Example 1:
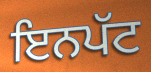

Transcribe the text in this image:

ਇਨਪੱਟ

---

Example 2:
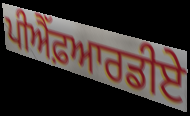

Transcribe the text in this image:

ਪੀਐੱਫ਼ਆਰਡੀਏ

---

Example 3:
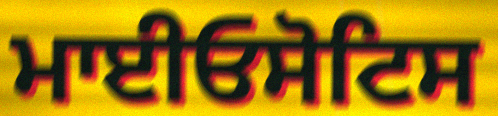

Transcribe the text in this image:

ਮਾਈਓਸੋਟਿਸ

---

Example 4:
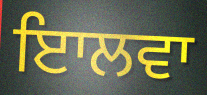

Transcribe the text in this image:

ਇਾਲਵਾ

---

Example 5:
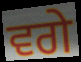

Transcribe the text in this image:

ਵਗੇ